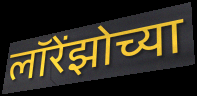
लॉरेंझोच्या